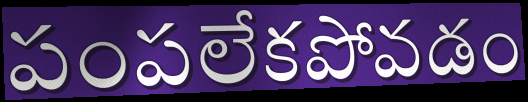
పంపలేకపోవడం